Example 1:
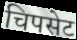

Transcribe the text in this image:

चिपसेट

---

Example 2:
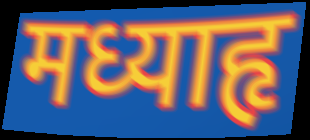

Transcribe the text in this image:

मध्याहृ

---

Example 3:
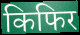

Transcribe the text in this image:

किफिर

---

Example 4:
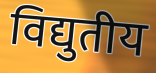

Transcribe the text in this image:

विद्युतीय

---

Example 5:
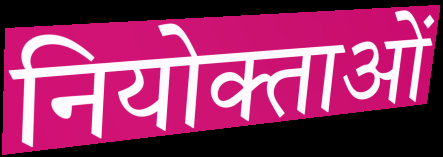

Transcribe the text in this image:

नियोक्ताओं